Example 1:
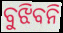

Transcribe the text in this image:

ବୁଝିବନି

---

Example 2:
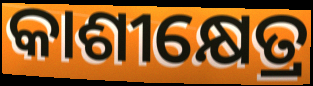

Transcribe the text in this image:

କାଶୀକ୍ଷେତ୍ର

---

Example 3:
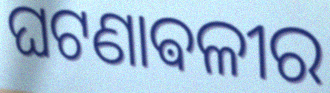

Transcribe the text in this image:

ଘଟଣାଵଳୀର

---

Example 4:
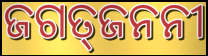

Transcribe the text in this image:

ଜଗତ୍‍ଜନନୀ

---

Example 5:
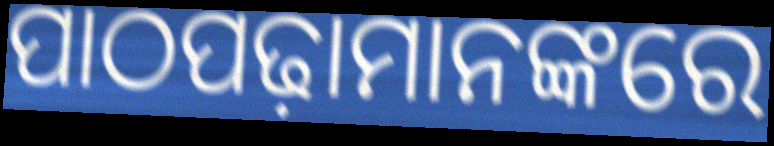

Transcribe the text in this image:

ପାଠପଢ଼ାମାନଙ୍କରେ